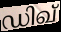
ഡിഖ്